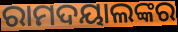
ରାମଦୟାଲଙ୍କର